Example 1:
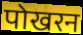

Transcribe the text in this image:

पोखरन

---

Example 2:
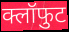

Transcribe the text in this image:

क्लॉफुट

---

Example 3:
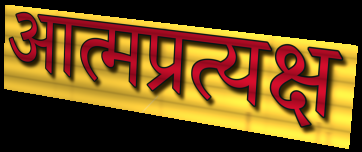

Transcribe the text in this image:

आत्मप्रत्यक्ष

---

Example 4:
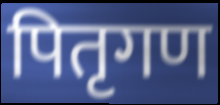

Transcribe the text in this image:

पितृगण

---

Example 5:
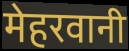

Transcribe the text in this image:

मेहरवानी